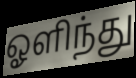
ஓளிந்து